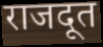
राजदूत